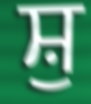
ਸ਼ੁ